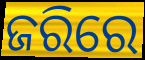
ଜରିରେ